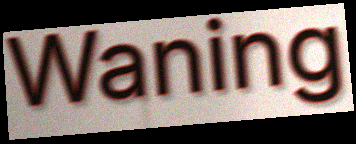
Waning